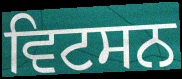
ਵਿਟਸਨ